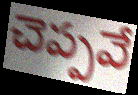
చెప్పవే